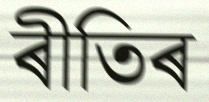
ৰীতিৰ